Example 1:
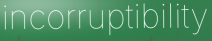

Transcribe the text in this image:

incorruptibility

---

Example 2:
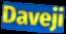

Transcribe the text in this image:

Daveji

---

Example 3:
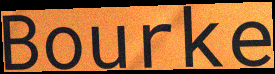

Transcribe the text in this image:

Bourke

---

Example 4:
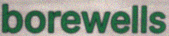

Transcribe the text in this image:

borewells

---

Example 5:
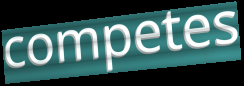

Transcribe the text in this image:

competes